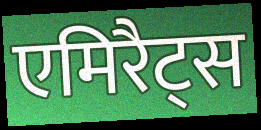
एमिरैट्स